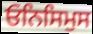
ਓਨਿਸਿਮੁਸ